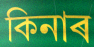
কিনাৰ